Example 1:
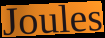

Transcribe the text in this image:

Joules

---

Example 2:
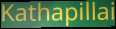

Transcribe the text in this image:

Kathapillai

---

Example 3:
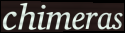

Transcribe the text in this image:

chimeras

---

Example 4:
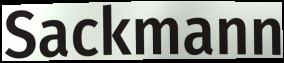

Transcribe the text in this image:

Sackmann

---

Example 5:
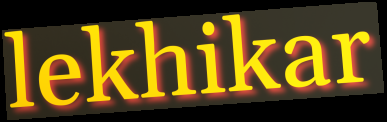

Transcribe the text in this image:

lekhikar